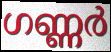
ഗണ്ണർ